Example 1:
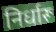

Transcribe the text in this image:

निर्धारू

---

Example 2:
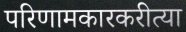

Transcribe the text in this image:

परिणामकारकरीत्या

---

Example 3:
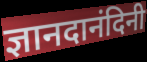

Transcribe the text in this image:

ज्ञानदानंदिनी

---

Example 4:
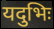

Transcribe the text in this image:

यदुभिः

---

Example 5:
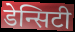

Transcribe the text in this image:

डेन्सिटी